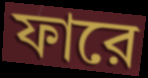
ফারে